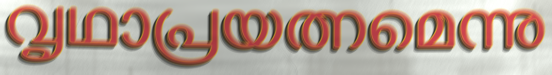
വൃഥാപ്രയത്നമെന്നു